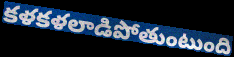
కళకళలాడిపోతుంటుంది